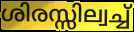
ശിരസ്സില്വച്ച്